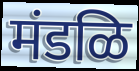
मंडळि